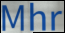
Mhr